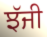
ਝੱਜੀ